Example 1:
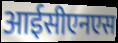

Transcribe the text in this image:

आईसीएनएस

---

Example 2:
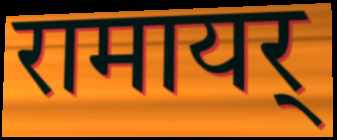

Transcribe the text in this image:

रामायर्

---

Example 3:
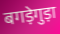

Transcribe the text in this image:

बगड़ेगुड़ा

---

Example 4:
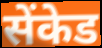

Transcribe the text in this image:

सेंकेड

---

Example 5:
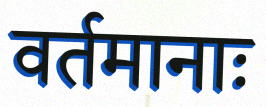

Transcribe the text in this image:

वर्तमानाः